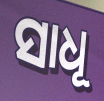
ସାଧୂ